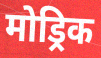
मोड्रिक